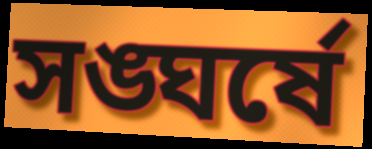
সঙ্ঘর্ষে